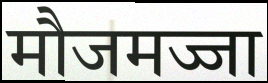
मौजमज्जा